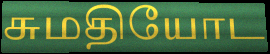
சுமதியோட